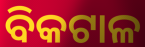
ବିକଟାଳ